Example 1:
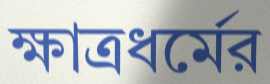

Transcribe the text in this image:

ক্ষাত্রধর্মের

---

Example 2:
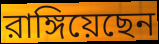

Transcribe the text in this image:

রাঙ্গিয়েছেন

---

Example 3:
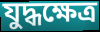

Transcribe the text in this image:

যুদ্ধক্ষেত্র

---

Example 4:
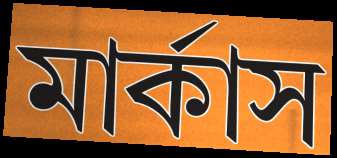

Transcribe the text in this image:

মার্কাস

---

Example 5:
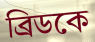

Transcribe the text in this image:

ব্রিডকে